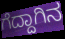
ಗೆದ್ದಾಗಿನ